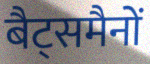
बैट्समैनों